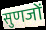
सुणजों